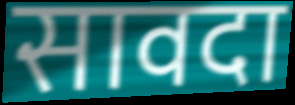
सावदा